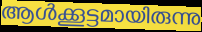
ആൾക്കൂട്ടമായിരുന്നു